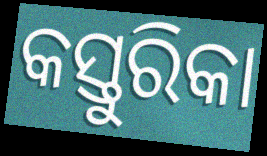
କସ୍ତୁରିକା